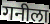
गनीला